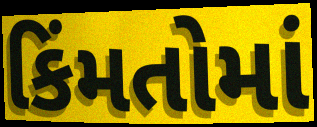
કિંમતોમાં